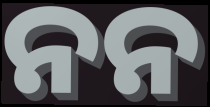
ନନ